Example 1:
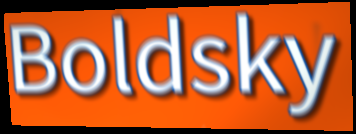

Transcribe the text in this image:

Boldsky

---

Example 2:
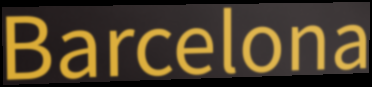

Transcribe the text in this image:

Barcelona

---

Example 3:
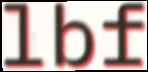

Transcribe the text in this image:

lbf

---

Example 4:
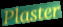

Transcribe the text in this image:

Plaster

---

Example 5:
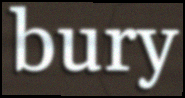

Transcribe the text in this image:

bury